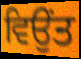
ਵਿਉਂਤ